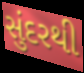
સુંદરથી